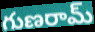
గుణరామ్